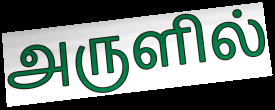
அருளில்